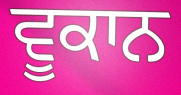
ਵੂਕਾਨ